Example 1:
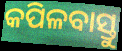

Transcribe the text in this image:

କପିଳବାସ୍ତୁ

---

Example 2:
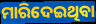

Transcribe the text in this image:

ମାରିଦେଇଥିବା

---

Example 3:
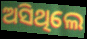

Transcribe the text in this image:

ଅସିଥିଲେ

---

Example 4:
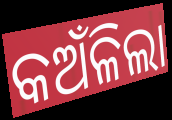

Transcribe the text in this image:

କଅଁଳିଲା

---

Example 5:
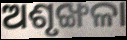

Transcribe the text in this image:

ଅଶୃଙ୍ଖଳା